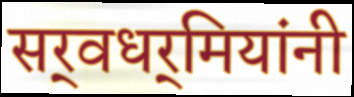
सर्वधर्मियांनी